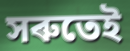
সৰুতেই